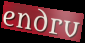
endru